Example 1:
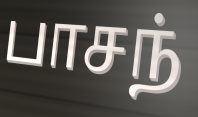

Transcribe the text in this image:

பாசந்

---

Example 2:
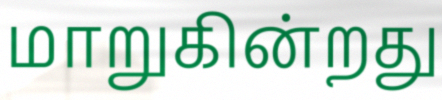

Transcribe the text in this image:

மாறுகின்றது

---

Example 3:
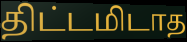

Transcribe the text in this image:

திட்டமிடாத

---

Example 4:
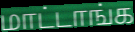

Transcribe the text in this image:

மாட்டாங்க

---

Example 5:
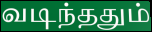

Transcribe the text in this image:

வடிந்ததும்